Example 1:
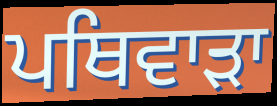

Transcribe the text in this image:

ਪਥਿਵਾੜਾ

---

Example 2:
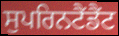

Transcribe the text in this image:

ਸੁਪਰਿਨਟੈਂਡੈਂਟ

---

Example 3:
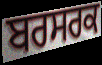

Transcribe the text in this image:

ਬਰਸਰਕ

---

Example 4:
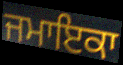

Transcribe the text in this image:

ਜਮਾਇਕਾ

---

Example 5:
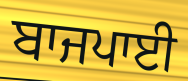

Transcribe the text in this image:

ਬਾਜਪਾਈ